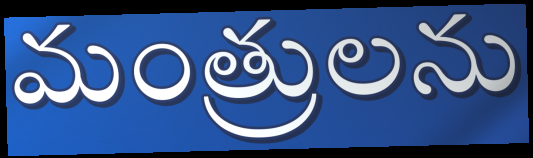
మంత్రులను